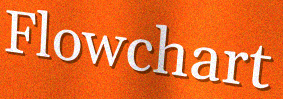
Flowchart